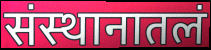
संस्थानातलं